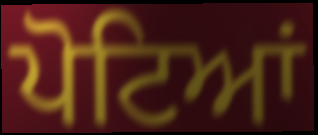
ਪੋਟਿਆਂ